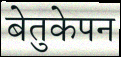
बेतुकेपन